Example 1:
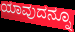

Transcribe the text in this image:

ಯಾವುದನ್ನೂ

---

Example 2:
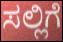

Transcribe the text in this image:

ಸಲ್ಲಿಗೆ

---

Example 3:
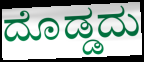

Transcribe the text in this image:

ದೊಡ್ಡದು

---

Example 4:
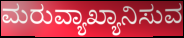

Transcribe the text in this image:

ಮರುವ್ಯಾಖ್ಯಾನಿಸುವ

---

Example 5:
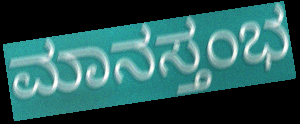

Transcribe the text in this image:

ಮಾನಸ್ತಂಭ